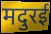
मदुरई